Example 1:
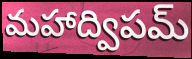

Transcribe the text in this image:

మహాద్విపమ్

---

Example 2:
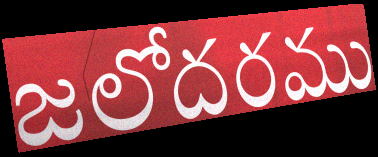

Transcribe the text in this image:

జలోదరము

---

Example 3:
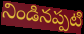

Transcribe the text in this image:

నిండినప్పటి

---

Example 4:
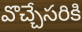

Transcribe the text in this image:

వొచ్చేసరికి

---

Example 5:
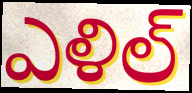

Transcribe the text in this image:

ఎళిల్